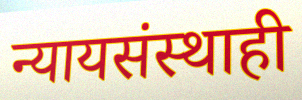
न्यायसंस्थाही